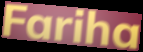
Fariha